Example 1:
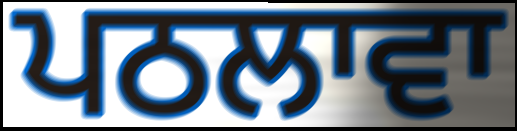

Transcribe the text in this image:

ਪਠਲਾਵਾ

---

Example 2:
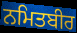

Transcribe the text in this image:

ਨਮਿਤਬੀਰ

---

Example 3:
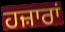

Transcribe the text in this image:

ਹਜ਼ਾਰਾਂ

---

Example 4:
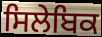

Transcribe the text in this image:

ਸਿਲੇਬਿਕ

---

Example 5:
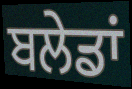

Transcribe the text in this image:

ਬਲੇਡਾਂ